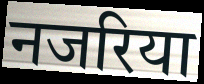
नजरिया